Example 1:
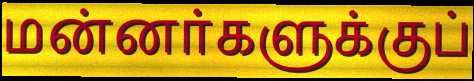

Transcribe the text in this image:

மன்னர்களுக்குப்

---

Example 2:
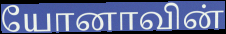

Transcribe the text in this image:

யோனாவின்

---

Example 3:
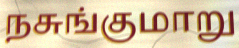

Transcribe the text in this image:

நசுங்குமாறு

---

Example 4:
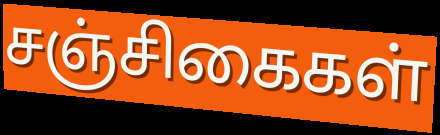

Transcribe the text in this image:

சஞ்சிகைகள்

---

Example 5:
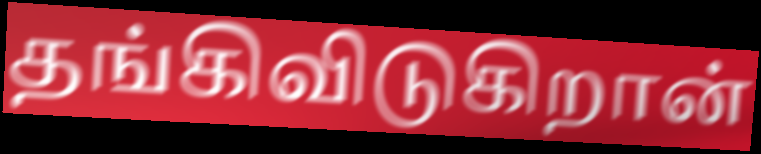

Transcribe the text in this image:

தங்கிவிடுகிறான்